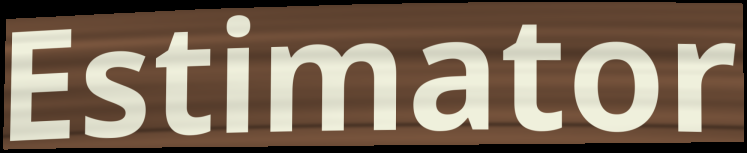
Estimator